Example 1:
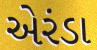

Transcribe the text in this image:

એરંડા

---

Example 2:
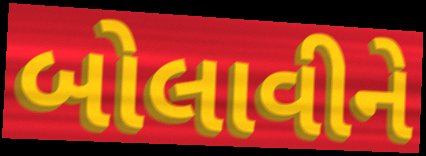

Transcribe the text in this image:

બોલાવીને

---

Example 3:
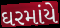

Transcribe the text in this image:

ઘરમાંયે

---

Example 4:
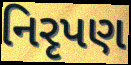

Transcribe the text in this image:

નિરૃપણ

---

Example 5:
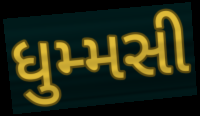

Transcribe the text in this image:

ધુમ્મસી